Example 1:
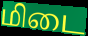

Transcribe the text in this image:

மிடை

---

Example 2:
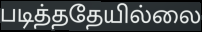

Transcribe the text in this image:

படித்ததேயில்லை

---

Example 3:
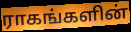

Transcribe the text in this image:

ராகங்களின்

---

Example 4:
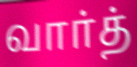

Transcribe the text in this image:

வார்த்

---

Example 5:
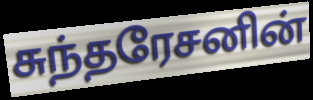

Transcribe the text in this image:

சுந்தரேசனின்